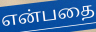
என்பதை